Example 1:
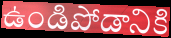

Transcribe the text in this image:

ఉండిపోడానికి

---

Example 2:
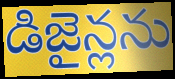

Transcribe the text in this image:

డిజైన్లను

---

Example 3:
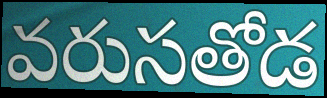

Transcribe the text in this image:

వరుసతోడ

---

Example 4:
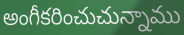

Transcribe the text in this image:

అంగీకరించుచున్నాము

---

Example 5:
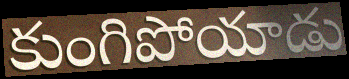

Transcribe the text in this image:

కుంగిపోయాడు